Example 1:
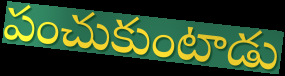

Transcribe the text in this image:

పంచుకుంటాడు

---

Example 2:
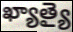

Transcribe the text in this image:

ఖ్యాత్యై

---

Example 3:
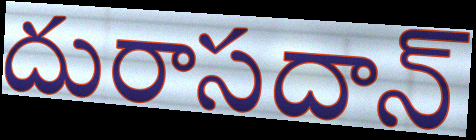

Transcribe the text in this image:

దురాసదాన్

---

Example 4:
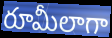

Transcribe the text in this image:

రూమీలాగా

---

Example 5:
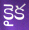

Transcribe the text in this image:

కైక